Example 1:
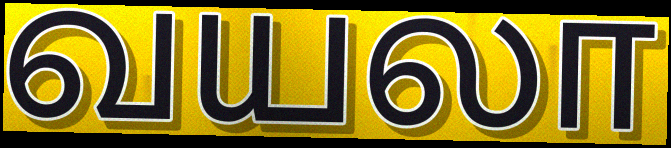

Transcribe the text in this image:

வயலா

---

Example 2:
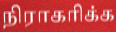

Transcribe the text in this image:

நிராகரிக்க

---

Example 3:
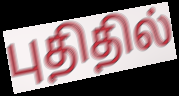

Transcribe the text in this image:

புதிதில்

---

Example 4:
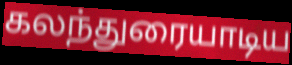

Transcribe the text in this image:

கலந்துரையாடிய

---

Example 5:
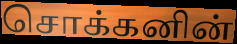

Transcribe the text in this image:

சொக்கனின்